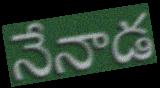
నేనాడ